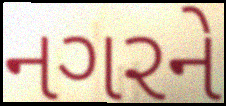
નગરને